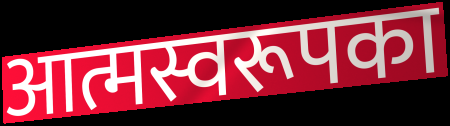
आत्मस्वरूपका